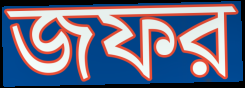
জফর